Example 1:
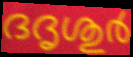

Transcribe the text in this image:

ദദൃശുർ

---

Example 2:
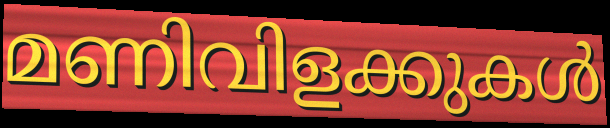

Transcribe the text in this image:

മണിവിളക്കുകൾ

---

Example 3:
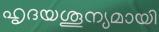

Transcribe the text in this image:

ഹൃദയശൂന്യമായി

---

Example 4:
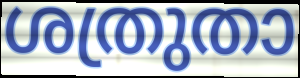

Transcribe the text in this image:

ശത്രുതാ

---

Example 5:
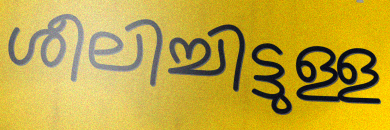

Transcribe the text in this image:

ശീലിച്ചിട്ടുള്ള